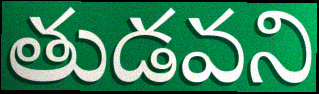
తుడవని